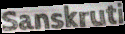
Sanskruti